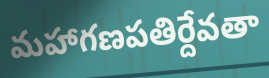
మహాగణపతిర్దేవతా